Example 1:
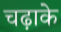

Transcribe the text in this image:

चढ़ाके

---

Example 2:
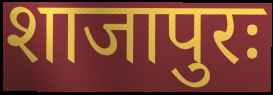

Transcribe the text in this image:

शाजापुरः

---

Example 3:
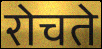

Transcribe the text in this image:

रोचते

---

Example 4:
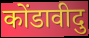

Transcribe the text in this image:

कोंडावीदु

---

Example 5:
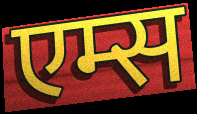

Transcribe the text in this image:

एम्‍स